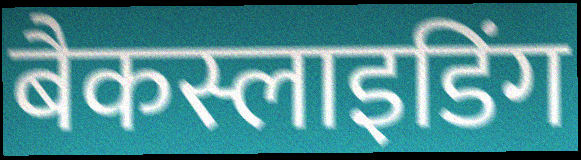
बैकस्लाइडिंग